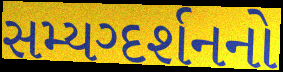
સમ્યગ્દર્શનનો